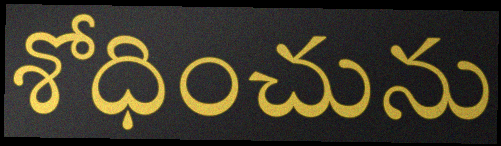
శోధించును